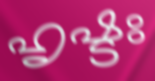
ഹൃഷ്ടഃ